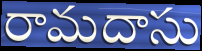
రామదాసు